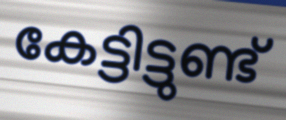
കേട്ടിട്ടുണ്ട്